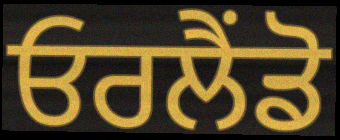
ਓਰਲੈਂਡੋ